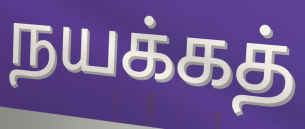
நயக்கத்